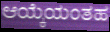
ಆಯ್ಕೆಯಂತಹ